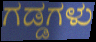
ಗಡ್ಡಗಳು